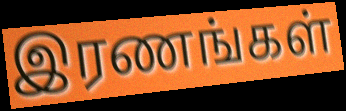
இரணங்கள்